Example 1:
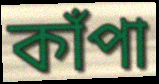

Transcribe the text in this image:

কাঁপা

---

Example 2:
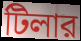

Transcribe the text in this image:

টিলার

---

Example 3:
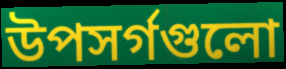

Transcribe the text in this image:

উপসর্গগুলো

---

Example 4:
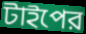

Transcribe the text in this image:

টাইপের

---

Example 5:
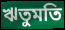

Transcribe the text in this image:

ঋতুমতি